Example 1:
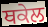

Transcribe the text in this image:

ਥਕੇਲ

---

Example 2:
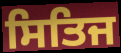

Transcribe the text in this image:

ਸਿਤਿਜ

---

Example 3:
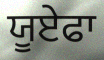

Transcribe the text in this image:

ਯੂਏਫਾ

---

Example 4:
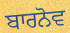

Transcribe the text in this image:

ਬਾਰਨੋਵ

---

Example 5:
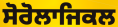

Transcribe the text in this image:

ਸੋਰੋਲਾਜਿਕਲ